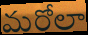
మరోలా